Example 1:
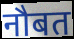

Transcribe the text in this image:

नौबत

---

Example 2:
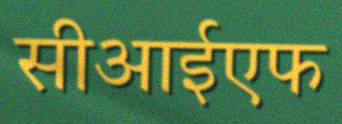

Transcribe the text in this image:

सीआईएफ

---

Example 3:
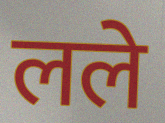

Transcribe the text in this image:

लले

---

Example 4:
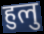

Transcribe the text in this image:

हुलु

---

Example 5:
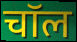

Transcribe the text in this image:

चॉल